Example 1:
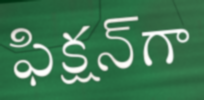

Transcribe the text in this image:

ఫిక్షన్‌గా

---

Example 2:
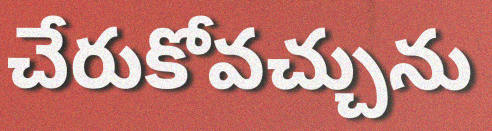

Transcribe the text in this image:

చేరుకోవచ్చును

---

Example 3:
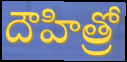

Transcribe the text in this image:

దౌహిత్రో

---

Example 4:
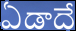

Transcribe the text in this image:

ఏడాదే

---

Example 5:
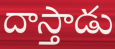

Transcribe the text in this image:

దాస్తాడు